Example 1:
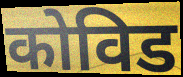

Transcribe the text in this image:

कोविड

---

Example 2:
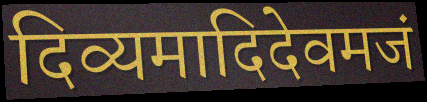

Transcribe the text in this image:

दिव्यमादिदेवमजं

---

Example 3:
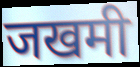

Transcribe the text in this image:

जखमी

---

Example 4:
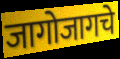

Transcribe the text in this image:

जागोजागचे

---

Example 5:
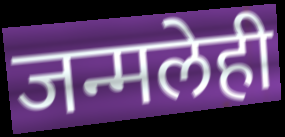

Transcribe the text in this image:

जन्मलेही